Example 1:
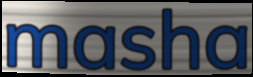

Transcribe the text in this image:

masha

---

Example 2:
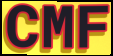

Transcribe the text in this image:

CMF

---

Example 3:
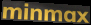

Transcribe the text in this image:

minmax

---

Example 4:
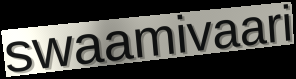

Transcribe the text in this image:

swaamivaari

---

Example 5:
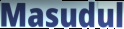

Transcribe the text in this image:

Masudul